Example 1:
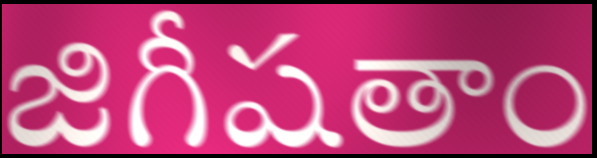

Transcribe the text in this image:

జిగీషతాం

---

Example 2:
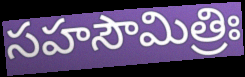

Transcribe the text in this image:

సహసౌమిత్రిః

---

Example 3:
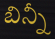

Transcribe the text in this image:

బిన్నీ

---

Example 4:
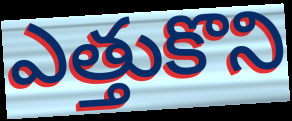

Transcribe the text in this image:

ఎత్తుకొని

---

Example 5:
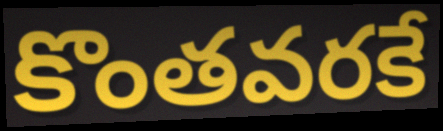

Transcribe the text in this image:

కొంతవరకే